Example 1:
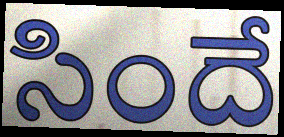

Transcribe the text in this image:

సిందే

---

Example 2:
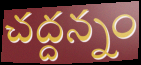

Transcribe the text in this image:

చద్దన్నం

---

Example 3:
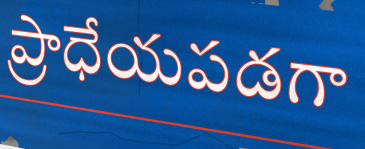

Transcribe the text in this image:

ప్రాధేయపడగా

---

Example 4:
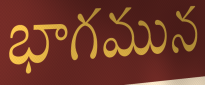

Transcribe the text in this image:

భాగమున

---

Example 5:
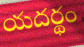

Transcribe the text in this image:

యదర్థం